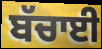
ਬੱਚਾਈ